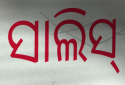
ସାଲିସ୍